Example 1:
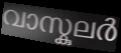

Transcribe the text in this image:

വാസ്കുലർ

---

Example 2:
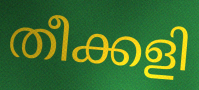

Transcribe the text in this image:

തീക്കളി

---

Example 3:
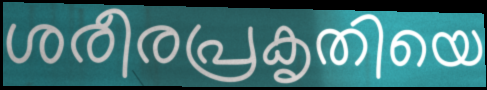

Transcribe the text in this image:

ശരീരപ്രകൃതിയെ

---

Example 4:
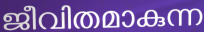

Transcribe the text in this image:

ജീവിതമാകുന്ന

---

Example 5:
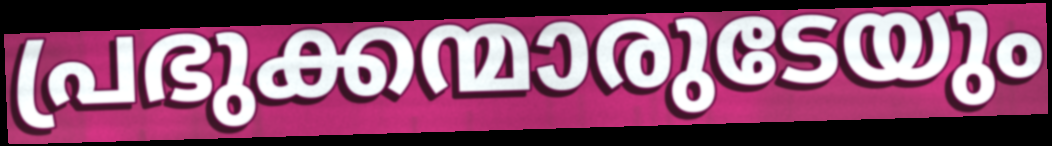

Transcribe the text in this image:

പ്രഭുക്കന്മാരുടേയും